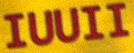
IUUII